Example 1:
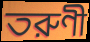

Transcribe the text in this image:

তরুণী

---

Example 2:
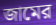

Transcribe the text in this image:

জামের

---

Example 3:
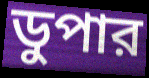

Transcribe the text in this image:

ডুপার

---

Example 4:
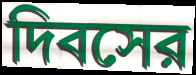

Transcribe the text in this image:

দিবসের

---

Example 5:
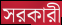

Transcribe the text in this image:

সরকারী